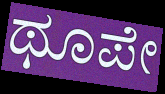
ಥೂಪೇ